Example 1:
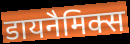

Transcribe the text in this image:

डायनैमिक्स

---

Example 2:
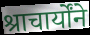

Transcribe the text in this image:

श्राचार्योंने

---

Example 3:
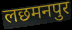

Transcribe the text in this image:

लछमनपुर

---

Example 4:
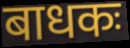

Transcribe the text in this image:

बाधकः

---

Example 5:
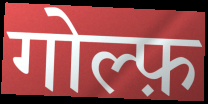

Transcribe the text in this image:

गोल्फ़